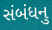
સંબંધનુ